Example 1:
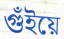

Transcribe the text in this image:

গুঁইয়ে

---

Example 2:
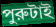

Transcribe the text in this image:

পুরুটাই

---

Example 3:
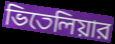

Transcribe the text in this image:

ভিতেলিয়ার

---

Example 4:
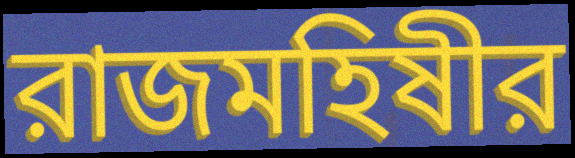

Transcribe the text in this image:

রাজমহিষীর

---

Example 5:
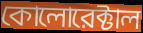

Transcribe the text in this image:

কোলোরেক্টাল